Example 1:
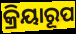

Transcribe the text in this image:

କ୍ରିୟାରୂପ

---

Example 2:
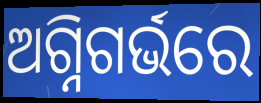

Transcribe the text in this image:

ଅଗ୍ନିଗର୍ଭରେ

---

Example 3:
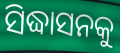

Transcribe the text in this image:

ସିଦ୍ଧାସନକୁ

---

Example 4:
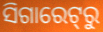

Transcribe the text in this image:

ସିଗାରେଟ୍‌ରୁ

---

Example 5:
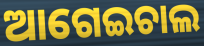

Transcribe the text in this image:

ଆଗେଇଚାଲ